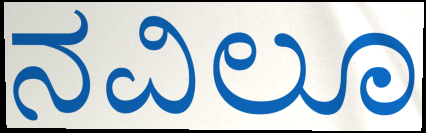
ನವಿಲೂ